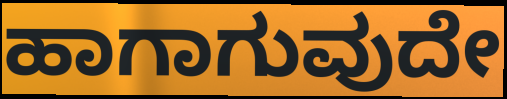
ಹಾಗಾಗುವುದೇ